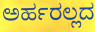
ಅರ್ಹರಲ್ಲದ